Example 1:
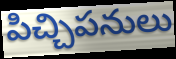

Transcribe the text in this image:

పిచ్చిపనులు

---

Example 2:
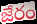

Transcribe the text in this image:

జేరం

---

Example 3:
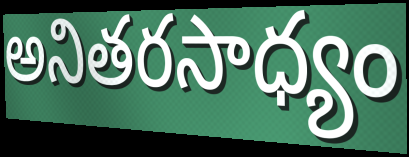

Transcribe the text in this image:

అనితరసాధ్యం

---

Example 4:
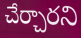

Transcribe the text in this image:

చేర్చారని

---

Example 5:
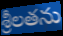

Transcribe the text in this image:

శ్రీలతను